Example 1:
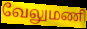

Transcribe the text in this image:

வேலுமணி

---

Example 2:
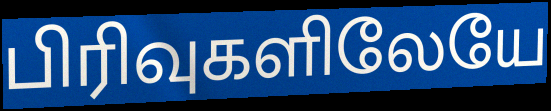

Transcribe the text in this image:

பிரிவுகளிலேயே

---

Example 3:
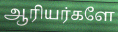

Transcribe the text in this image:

ஆரியர்களே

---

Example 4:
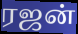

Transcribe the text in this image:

ரஜன்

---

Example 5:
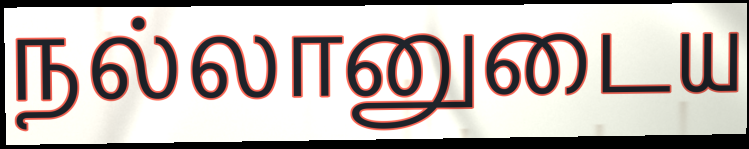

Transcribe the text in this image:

நல்லானுடைய